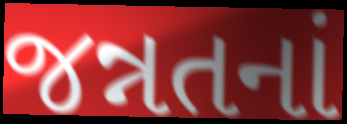
જન્નતનાં